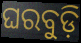
ଘରବୁଡ଼ି